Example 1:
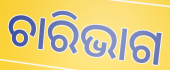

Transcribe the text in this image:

ଚାରିଭାଗ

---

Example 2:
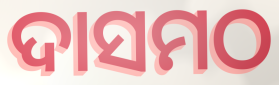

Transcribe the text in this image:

ଦାସମଠ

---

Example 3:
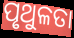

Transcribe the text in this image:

ପୃଥୁଳତା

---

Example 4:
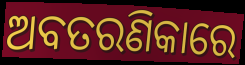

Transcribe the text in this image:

ଅବତରଣିକାରେ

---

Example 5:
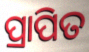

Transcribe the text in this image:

ପ୍ରାପିତ